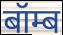
बॉम्ब